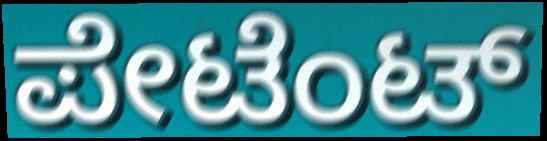
ಪೇಟೆಂಟ್